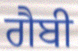
ਗੈਬੀ